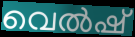
വെൽഷ്